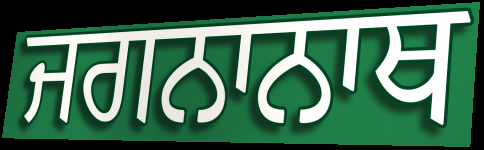
ਜਗਨਾਨਾਥ